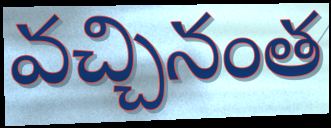
వచ్చినంత